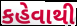
કહેવાથી